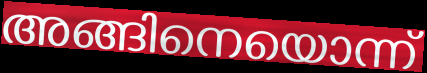
അങ്ങിനെയൊന്ന്